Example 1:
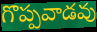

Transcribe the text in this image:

గొప్పవాడవు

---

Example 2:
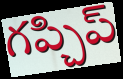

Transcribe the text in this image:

గప్చిప్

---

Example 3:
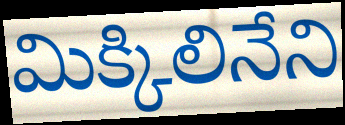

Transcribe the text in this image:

మిక్కిలినేని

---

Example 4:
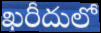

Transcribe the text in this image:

ఖరీదులో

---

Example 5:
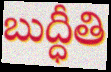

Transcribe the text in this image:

బుద్ధీతి